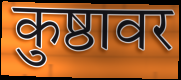
कुष्ठावर